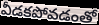
వీడకపోవడంతో